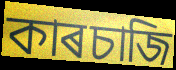
কাৰচাজি